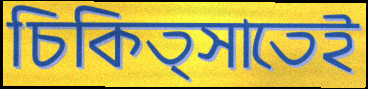
চিকিত্সাতেই